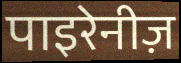
पाइरेनीज़